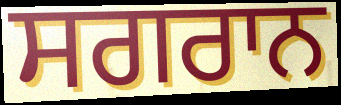
ਸਗਰਾਨ